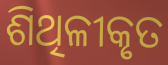
ଶିଥିଳୀକୃତ